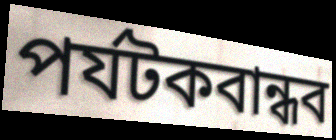
পর্যটকবান্ধব